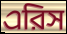
এরিস